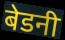
बेडनी